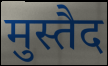
मुस्तैद